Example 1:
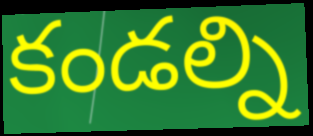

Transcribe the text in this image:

కండల్ని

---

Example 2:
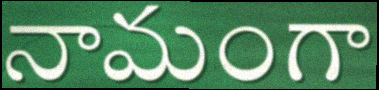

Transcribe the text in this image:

నామంగా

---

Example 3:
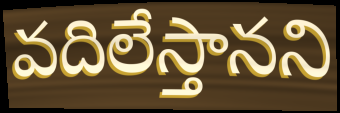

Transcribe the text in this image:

వదిలేస్తానని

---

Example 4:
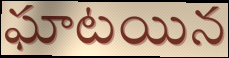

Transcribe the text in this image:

ఘాటయిన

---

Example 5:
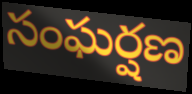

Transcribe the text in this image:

సంఘర్షణ